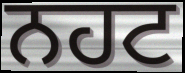
ਨਹਟ